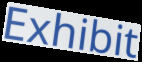
Exhibit